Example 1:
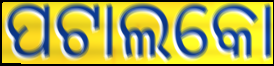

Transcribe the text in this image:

ପଟାଲକୋ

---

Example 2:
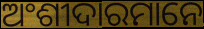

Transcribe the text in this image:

ଅଂଶୀଦାରମାନେ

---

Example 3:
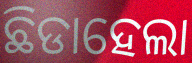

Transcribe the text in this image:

ଛିଡାହେଲା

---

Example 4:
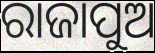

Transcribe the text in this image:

ରାଜାପୁଅ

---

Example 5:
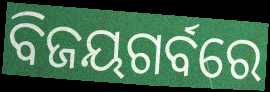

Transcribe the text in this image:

ବିଜୟଗର୍ବରେ